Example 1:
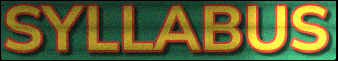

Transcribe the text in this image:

SYLLABUS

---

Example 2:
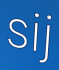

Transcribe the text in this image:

sij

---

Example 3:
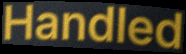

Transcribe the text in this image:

Handled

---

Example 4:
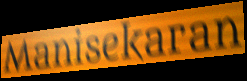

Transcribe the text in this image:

Manisekaran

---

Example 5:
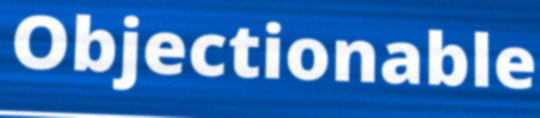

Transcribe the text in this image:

Objectionable